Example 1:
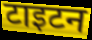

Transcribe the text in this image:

टाइटन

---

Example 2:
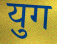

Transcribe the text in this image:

युग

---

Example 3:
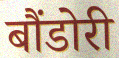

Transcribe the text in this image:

बौंडोरी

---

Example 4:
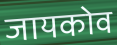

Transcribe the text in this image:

जायकोव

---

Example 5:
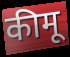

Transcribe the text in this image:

कीमू